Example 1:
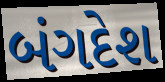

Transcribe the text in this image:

બંગદેશ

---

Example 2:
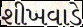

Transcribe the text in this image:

શીખવાડે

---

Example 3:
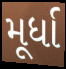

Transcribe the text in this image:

મૂર્ધા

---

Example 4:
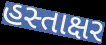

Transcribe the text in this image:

હસ્તાક્ષર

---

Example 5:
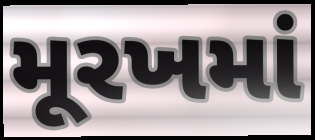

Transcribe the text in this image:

મૂરખમાં